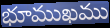
భూముఖము